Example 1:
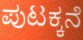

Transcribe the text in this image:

ಪುಟಕ್ಕನೆ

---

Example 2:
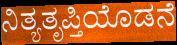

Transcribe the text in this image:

ನಿತ್ಯತೃಪ್ತಿಯೊಡನೆ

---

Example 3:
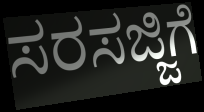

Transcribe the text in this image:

ಸರಸಜ್ಜಿಗೆ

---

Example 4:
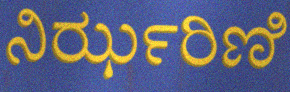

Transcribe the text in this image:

ನಿರ್ಝರಿಣಿ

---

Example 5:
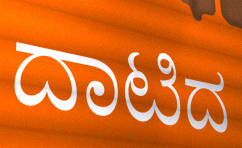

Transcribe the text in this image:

ದಾಟಿದ